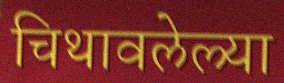
चिथावलेल्या